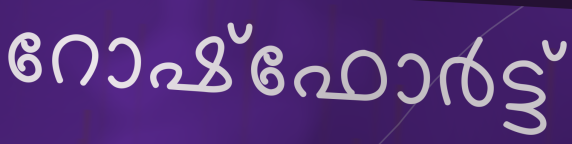
റോഷ്ഫോർട്ട്